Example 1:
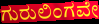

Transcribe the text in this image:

ಗುರುಲಿಂಗವೇ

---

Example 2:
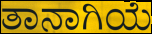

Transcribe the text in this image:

ತಾನಾಗಿಯೆ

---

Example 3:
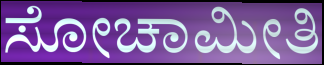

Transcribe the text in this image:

ಸೋಚಾಮೀತಿ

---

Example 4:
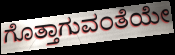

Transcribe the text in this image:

ಗೊತ್ತಾಗುವಂತೆಯೇ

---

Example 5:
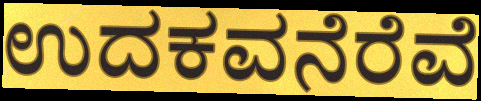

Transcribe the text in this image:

ಉದಕವನೆರೆವೆ